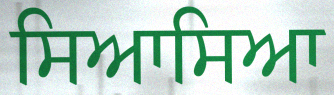
ਸਿਆਸਿਆ